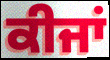
ਕੀਜਾਂ